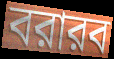
বরারব